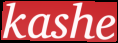
kashe